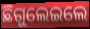
ଛିଗୁଲେଇଲେ